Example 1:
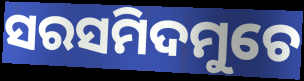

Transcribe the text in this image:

ସରସମିଦମୁଚେ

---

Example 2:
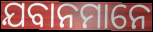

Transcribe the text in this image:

ଯବାନମାନେ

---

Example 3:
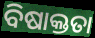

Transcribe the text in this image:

ବିଷାକ୍ତତା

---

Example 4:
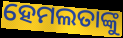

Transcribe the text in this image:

ହେମଲତାଙ୍କୁ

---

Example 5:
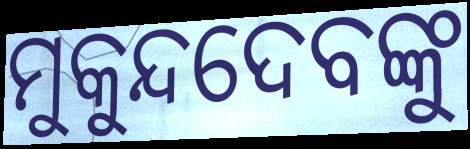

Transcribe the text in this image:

ମୁକୁନ୍ଦଦେବଙ୍କୁ